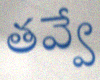
తవ్వే